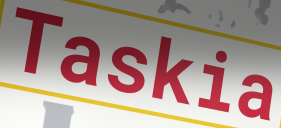
Taskia